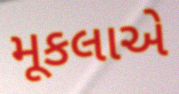
મૂકલાએ